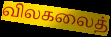
விலகலைத்